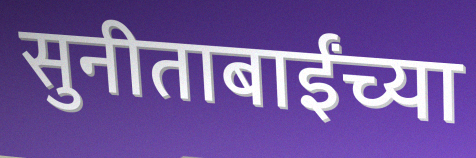
सुनीताबाईंच्या